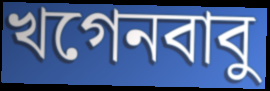
খগেনবাবু